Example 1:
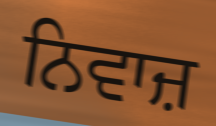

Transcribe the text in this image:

ਨਿਵਾਜ਼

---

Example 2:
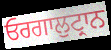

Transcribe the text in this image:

ਓਰਗਾਲੁਟ੍ਰਾਨ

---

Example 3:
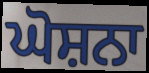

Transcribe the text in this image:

ਘੋਸ਼ਨਾ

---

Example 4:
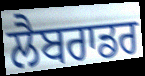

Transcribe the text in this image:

ਲੈਬਰਾਡਰ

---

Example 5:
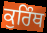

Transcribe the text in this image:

ਕੁਰਿੰਥ